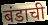
बंडाची